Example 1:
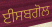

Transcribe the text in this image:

ਈਸਬਗੋਲ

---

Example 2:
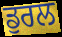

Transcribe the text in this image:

ਡੁਰਲ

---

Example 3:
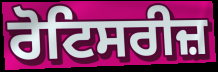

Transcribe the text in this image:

ਰੋਟਿਸਰੀਜ਼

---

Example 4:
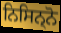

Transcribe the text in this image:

ਨਿਸਿਨ੍ਨੋ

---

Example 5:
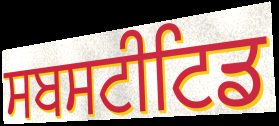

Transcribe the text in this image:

ਸਬਸਟੀਟਿਡ